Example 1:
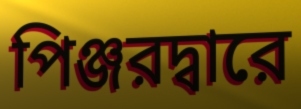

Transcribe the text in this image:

পিঞ্জরদ্বারে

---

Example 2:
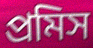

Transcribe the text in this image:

প্রমিস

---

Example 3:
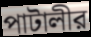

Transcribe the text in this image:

পাটালীর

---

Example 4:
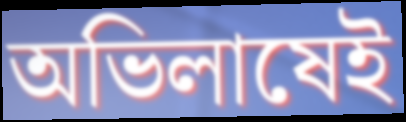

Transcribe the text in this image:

অভিলাষেই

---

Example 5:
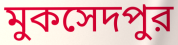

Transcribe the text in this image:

মুকসেদপুর